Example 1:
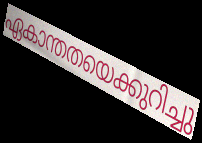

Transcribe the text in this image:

ഏകാന്തതയെക്കുറിച്ചു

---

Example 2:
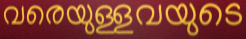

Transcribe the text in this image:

വരെയുള്ളവയുടെ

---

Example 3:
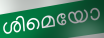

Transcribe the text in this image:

ശിമെയോ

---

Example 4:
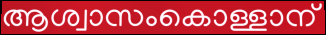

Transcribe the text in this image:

ആശ്വാസംകൊള്ളാന്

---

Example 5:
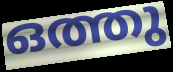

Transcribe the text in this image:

ഒത്തു